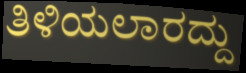
ತಿಳಿಯಲಾರದ್ದು